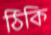
ঠিকি